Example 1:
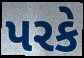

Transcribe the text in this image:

પરકે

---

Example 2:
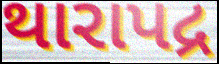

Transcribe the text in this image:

થારાપદ્ર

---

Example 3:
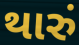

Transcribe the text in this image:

થારું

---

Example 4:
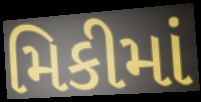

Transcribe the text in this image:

મિકીમાં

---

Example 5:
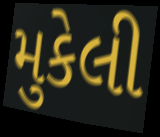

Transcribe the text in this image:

મુકેલી